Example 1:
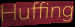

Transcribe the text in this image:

Huffing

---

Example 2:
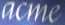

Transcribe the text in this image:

acme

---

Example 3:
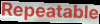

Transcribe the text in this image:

Repeatable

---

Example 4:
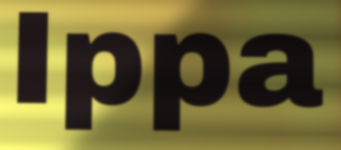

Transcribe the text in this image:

Ippa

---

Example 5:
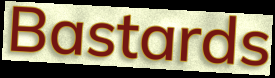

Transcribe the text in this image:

Bastards